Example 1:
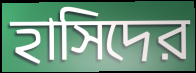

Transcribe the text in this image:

হাসিদের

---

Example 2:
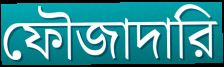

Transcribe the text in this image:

ফৌজাদারি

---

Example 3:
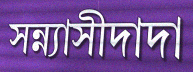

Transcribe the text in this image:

সন্ন্যাসীদাদা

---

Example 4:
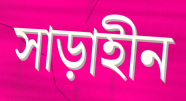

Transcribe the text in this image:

সাড়াহীন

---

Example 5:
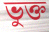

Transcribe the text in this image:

ভুক্ত